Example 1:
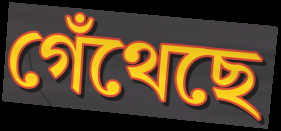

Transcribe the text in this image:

গেঁথেছে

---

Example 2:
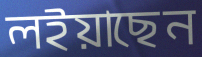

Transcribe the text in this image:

লইয়াছেন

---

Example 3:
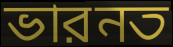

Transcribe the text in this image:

ভারনত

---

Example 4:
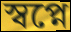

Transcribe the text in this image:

স্বপ্নে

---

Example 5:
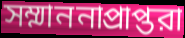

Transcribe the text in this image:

সম্মাননাপ্রাপ্তরা